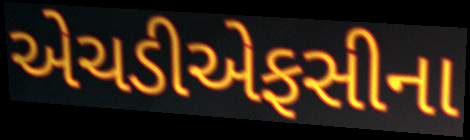
એચડીએફસીના